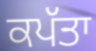
ਕਪੱਤਾ